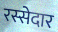
रस्सेदार